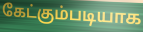
கேட்கும்படியாக